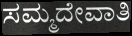
ಸಮ್ಮದೇವಾತಿ